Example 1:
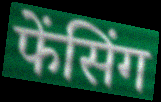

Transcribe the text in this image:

फेंसिंग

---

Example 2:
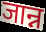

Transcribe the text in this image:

जान्न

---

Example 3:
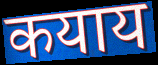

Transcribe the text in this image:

कयाय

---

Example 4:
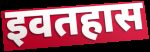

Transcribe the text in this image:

इवतहास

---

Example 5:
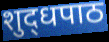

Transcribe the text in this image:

शुद्धपाठ